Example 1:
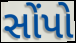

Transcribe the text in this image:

સોંપો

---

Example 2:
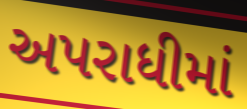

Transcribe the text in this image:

અપરાધીમાં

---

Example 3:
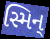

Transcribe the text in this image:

સ્મિન્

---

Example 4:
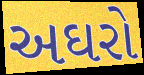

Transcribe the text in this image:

અઘરો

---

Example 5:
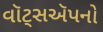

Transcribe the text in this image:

વૉટ્સઍપનો